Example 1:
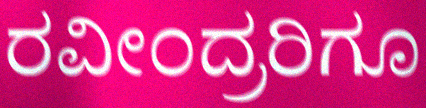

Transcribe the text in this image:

ರವೀಂದ್ರರಿಗೂ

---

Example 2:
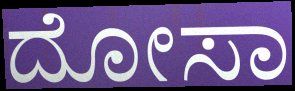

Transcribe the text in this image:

ದೋಸಾ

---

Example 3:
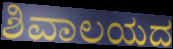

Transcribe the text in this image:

ಶಿವಾಲಯದ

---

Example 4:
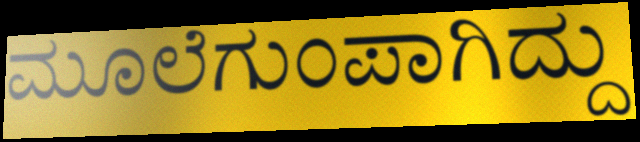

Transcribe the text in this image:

ಮೂಲೆಗುಂಪಾಗಿದ್ದು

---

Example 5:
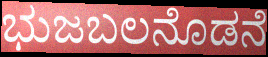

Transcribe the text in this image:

ಭುಜಬಲನೊಡನೆ